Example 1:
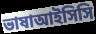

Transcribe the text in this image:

ভাষাআইসিসি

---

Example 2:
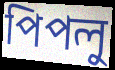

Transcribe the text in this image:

পিপলু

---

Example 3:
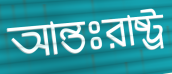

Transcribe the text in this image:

আন্তঃরাষ্ট্র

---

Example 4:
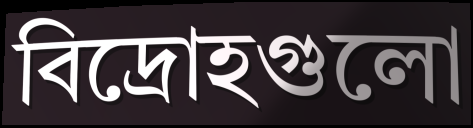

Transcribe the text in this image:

বিদ্রোহগুলো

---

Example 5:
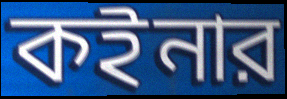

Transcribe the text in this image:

কইনার